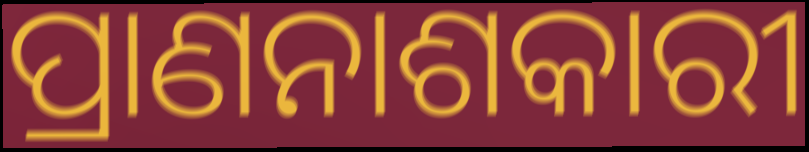
ପ୍ରାଣନାଶକାରୀ